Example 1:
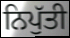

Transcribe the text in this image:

ਨਿਪੁੱਤੀ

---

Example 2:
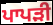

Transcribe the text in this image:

ਪਾਪੜੀ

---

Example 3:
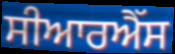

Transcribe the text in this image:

ਸੀਆਰਐੱਸ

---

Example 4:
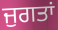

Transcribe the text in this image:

ਜੁਗਤਾਂ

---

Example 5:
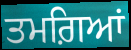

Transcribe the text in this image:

ਤਮਗ਼ਿਆਂ